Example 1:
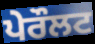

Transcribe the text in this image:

ਪੇਰੌਲਟ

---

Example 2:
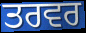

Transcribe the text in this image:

ਤਰਵਰ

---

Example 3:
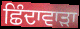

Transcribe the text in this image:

ਛਿੰਦਾਵਾੜਾ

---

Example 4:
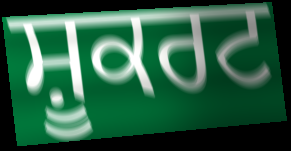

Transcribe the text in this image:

ਸ਼ੂਕਰਟ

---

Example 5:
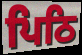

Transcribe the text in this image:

ਪਿਠਿ